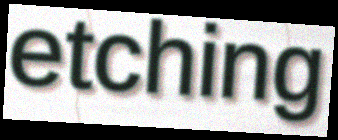
etching